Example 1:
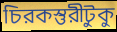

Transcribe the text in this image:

চিরকস্তুরীটুকু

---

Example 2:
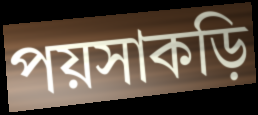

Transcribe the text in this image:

পয়সাকড়ি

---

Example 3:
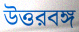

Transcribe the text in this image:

উত্তরবঙ্গ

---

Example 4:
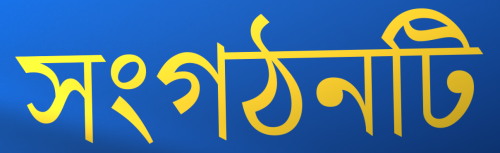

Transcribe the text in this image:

সংগঠনটি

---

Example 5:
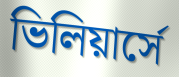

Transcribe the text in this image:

ভিলিয়ার্সে